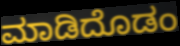
ಮಾಡಿದೊಡಂ